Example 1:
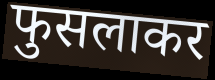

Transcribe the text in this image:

फुसलाकर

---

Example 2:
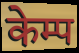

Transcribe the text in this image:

केम्प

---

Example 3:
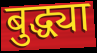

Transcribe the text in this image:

बुद्ध्या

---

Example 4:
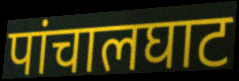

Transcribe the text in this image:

पांचालघाट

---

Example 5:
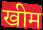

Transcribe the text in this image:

खीम